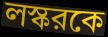
লস্করকে